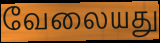
வேலையது